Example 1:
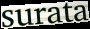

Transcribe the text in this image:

surata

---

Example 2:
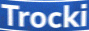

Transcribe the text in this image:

Trocki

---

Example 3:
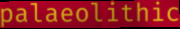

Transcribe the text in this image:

palaeolithic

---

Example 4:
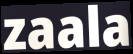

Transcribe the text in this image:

zaala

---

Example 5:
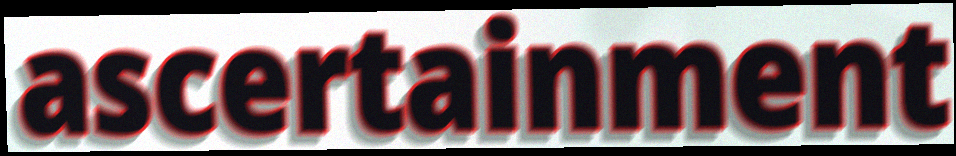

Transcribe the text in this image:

ascertainment